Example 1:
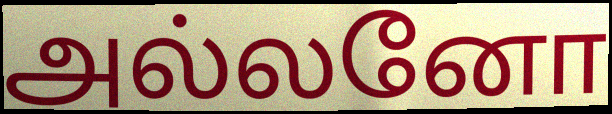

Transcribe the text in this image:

அல்லனோ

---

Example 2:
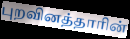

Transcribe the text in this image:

புறவினத்தாரின்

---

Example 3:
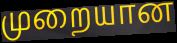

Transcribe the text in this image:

முறையான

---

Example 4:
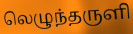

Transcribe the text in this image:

லெழுந்தருளி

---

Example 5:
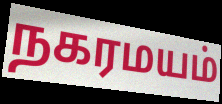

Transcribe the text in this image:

நகரமயம்